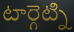
టార్గెట్ని